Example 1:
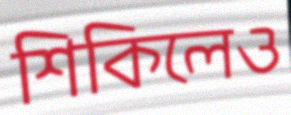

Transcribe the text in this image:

শিকিলেও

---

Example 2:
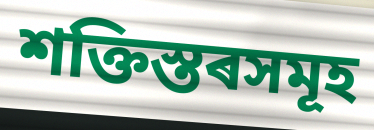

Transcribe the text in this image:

শক্তিস্তৰসমূহ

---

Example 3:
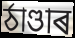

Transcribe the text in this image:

ঠাণ্ডাৰ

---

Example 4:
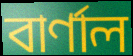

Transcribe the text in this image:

বাৰ্ণাল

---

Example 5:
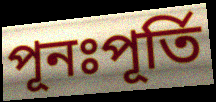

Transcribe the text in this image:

পূনঃপূৰ্তি